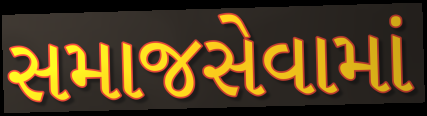
સમાજસેવામાં